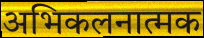
अभिकलनात्मक